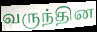
வருந்தின